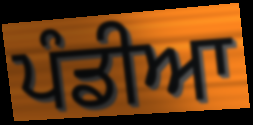
ਪੰਡੀਆ